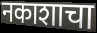
नकाशाचा